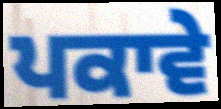
ਪਕਾਵੇ